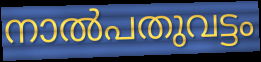
നാൽപതുവട്ടം